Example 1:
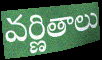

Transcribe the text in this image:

వర్ణితాలు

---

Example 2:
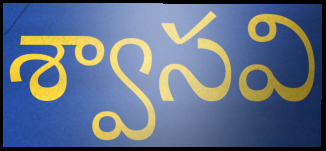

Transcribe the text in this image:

శ్వాసవి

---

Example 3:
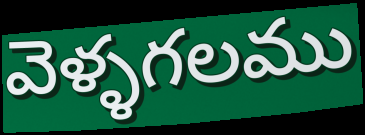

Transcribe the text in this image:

వెళ్ళగలము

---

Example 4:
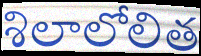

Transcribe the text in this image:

శిలాలోలిత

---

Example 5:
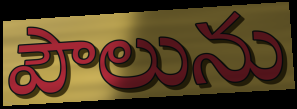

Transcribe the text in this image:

పౌలును